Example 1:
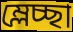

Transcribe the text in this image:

ম্লেচ্ছা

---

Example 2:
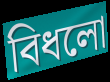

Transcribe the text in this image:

বিধলো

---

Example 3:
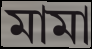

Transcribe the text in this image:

মামা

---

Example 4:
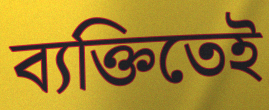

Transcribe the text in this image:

ব্যক্তিতেই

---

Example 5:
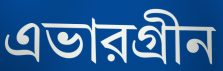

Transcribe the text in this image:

এভারগ্রীন